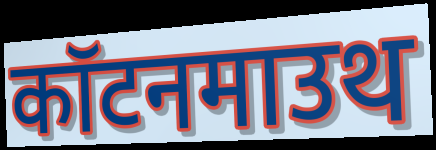
कॉटनमाउथ